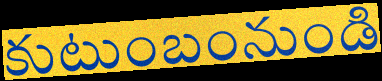
కుటుంబంనుండి